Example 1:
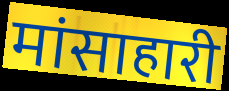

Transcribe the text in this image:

मांसाहारी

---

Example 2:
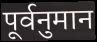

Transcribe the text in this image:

पूर्वनुमान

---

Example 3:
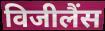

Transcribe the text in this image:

विजीलैंस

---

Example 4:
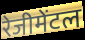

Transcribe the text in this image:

रेजीमेंटल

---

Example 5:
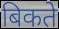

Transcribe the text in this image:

बिकते